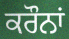
ਕਰੌਨਾਂ